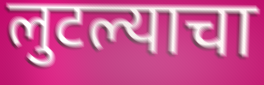
लुटल्याचा